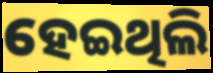
ହେଇଥିଲି